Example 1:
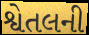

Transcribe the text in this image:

શ્વેતલની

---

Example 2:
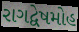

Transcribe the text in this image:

રાગદ્વેષમોહ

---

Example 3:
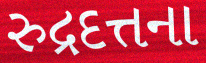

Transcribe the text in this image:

રુદ્રદત્તના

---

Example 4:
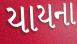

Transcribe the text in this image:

યાયના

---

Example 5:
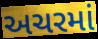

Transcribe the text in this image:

અચરમાં